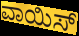
ವಾಯಿಸ್